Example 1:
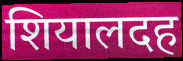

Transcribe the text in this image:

शियालदह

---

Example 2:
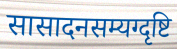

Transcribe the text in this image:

सासादनसम्यग्दृष्टि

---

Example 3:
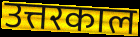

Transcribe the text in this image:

उत्तरकाल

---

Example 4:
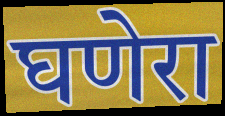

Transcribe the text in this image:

घणेरा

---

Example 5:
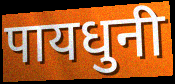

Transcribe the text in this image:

पायधुनी